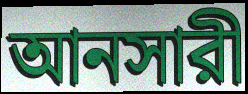
আনসারী